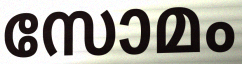
സോമം